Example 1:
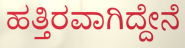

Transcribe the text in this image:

ಹತ್ತಿರವಾಗಿದ್ದೇನೆ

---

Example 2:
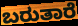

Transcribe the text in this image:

ಬರುತಾರೆ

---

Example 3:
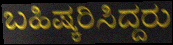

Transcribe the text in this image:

ಬಹಿಷ್ಕರಿಸಿದ್ದರು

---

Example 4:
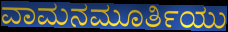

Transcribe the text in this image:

ವಾಮನಮೂರ್ತಿಯು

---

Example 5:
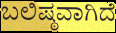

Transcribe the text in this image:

ಬಲಿಷ್ಠವಾಗಿದೆ